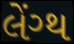
લેંગ્થ